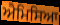
ਐਮਿਸਿਆ